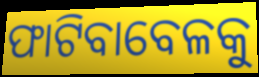
ଫାଟିବାବେଳକୁ